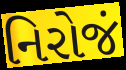
નિરોજં